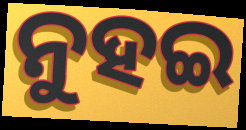
ନୁହଇ